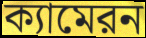
ক্যামেরন